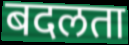
बदलता